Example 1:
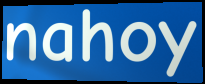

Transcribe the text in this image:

nahoy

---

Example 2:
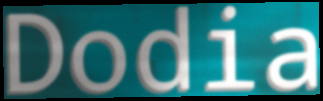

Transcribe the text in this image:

Dodia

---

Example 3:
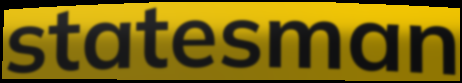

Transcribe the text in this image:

statesman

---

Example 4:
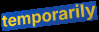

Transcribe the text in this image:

temporarily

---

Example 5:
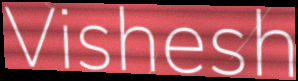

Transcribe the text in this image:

Vishesh